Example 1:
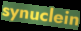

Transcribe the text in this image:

synuclein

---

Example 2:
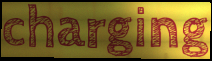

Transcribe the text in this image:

charging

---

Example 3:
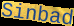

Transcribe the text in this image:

Sinbad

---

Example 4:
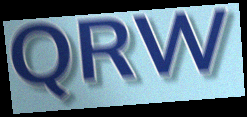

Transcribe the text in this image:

QRW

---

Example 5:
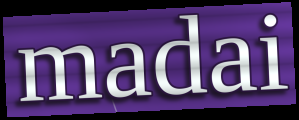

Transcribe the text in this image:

madai